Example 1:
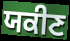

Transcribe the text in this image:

ਯਕੀਣ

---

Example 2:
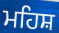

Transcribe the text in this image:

ਮਹਿਸ਼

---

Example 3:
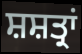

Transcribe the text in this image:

ਸ਼ਸ਼ਤ੍ਰਾਂ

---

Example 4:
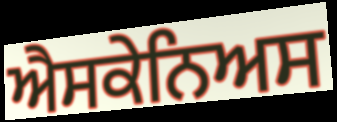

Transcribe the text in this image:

ਐਸਕੇਨਿਅਸ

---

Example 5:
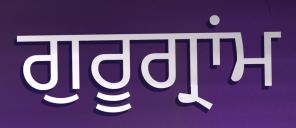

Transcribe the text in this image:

ਗੁਰੂਗ੍ਰਾਂਮ